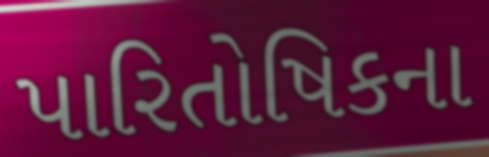
પારિતોષિકના